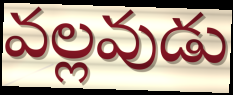
వల్లవుడు